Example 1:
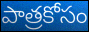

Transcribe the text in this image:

పాత్రకోసం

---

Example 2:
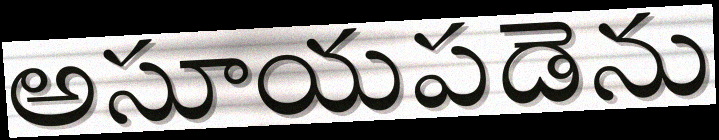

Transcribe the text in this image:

అసూయపడెను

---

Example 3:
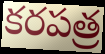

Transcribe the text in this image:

కరపత్ర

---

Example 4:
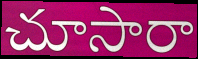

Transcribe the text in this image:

చూసారా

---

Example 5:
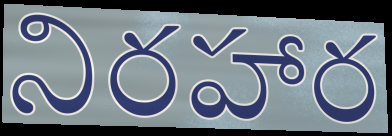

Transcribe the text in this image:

నిరహార